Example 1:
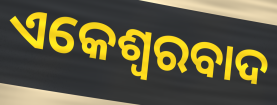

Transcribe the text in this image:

ଏକେଶ୍ୱରବାଦ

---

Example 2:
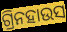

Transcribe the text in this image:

ଗ୍ରିନହାଉସ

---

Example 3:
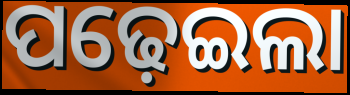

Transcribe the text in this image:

ପଢ଼େଇଲା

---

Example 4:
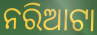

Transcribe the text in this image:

ନରିଆଟା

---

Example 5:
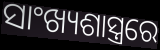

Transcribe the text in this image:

ସାଂଖ୍ୟଶାସ୍ତ୍ରରେ